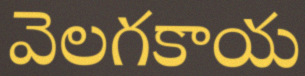
వెలగకాయ